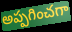
అప్పగించగా